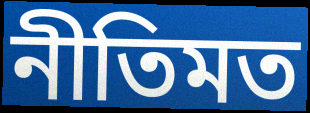
নীতিমত